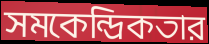
সমকেন্দ্রিকতার